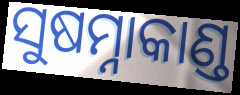
ସୁଷମ୍ନାକାଣ୍ଡ